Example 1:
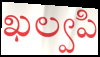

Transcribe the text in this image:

ఖల్వపి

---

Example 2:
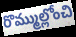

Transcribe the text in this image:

రొమ్ముల్లోంచి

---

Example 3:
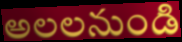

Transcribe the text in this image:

అలలనుండి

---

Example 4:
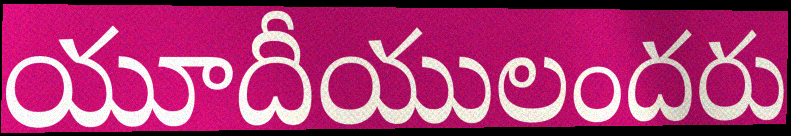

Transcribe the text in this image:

యూదీయులందరు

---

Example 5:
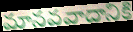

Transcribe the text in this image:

మానవవాదానికి